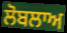
ਲੋਬਲਾਅ